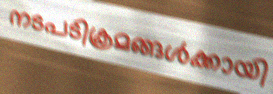
നടപടിക്രമങ്ങൾക്കായി